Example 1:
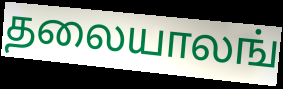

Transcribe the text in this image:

தலையாலங்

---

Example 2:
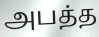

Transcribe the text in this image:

அபத்த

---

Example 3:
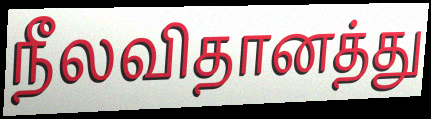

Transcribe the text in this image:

நீலவிதானத்து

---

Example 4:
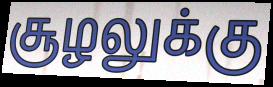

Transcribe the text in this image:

சூழலுக்கு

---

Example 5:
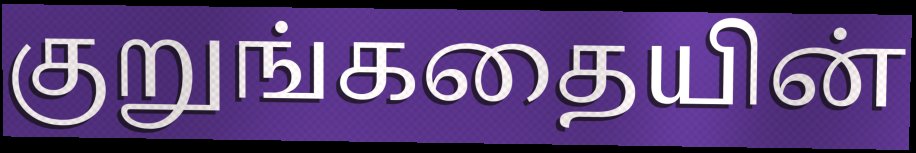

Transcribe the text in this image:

குறுங்கதையின்